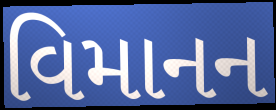
વિમાનન